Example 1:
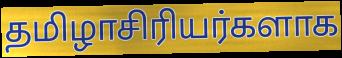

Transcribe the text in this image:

தமிழாசிரியர்களாக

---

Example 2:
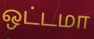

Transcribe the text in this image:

ஒட்டமா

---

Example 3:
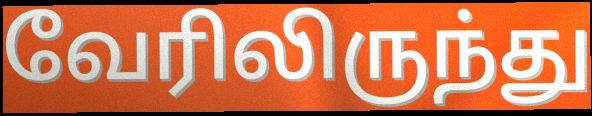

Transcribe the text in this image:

வேரிலிருந்து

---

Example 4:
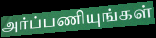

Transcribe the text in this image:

அர்ப்பணியுங்கள்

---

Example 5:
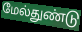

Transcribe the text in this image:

மேல்துண்டு